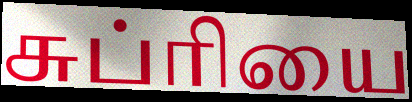
சுப்ரியை